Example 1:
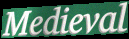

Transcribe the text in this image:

Medieval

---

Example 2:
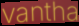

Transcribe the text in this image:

vantha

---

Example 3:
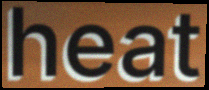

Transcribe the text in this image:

heat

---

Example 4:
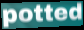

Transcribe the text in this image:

potted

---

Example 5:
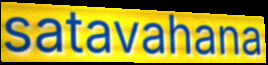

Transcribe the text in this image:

satavahana